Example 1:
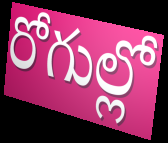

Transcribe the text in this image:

రోగుల్లో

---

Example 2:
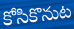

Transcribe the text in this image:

కోసికొనుట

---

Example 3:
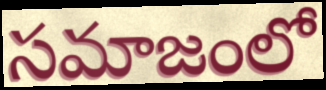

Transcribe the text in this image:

సమాజంలో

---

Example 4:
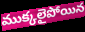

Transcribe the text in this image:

ముక్కలైపోయిన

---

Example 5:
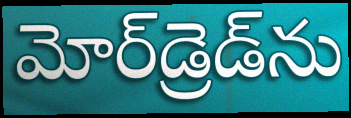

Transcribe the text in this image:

మోర్‌డ్రెడ్‌ను